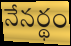
నేనర్థం